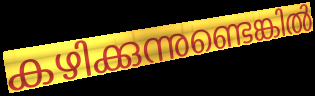
കഴിക്കുന്നുണ്ടെങ്കിൽ